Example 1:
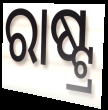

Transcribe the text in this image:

ରାଷ୍ଟ୍ର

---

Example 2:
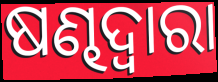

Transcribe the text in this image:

ଷଣ୍ଢଦ୍ୱାରା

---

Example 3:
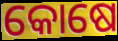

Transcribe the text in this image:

କୋଷେ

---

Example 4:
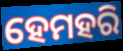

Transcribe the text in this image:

ହେମହରି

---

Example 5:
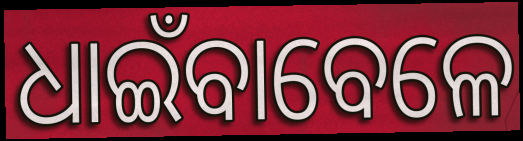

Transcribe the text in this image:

ଧାଇଁବାବେଳେ